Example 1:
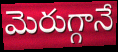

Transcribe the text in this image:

మెరుగ్గానే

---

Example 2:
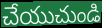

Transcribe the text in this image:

చేయుచుండి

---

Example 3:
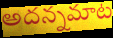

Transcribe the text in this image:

అదన్నమాట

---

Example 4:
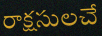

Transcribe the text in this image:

రాక్షసులచే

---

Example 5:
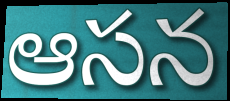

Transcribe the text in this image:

ఆసన